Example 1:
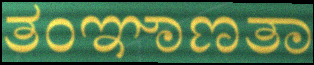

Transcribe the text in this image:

ತಂಞಾಣತಾ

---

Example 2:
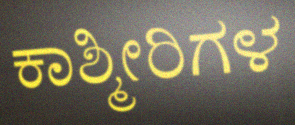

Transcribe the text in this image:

ಕಾಶ್ಮೀರಿಗಳ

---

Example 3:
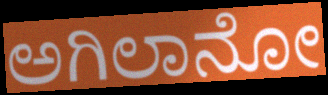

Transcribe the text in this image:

ಅಗಿಲಾನೋ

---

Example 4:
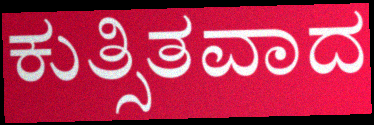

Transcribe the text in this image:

ಕುತ್ಸಿತವಾದ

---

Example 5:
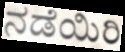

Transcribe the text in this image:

ನಡೆಯಿರಿ